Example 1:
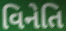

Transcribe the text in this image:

વિનેતિ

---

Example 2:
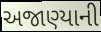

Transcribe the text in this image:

અજાણ્યાની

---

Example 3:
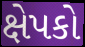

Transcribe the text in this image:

ક્ષેપકો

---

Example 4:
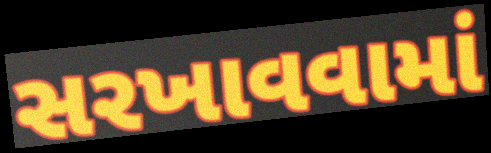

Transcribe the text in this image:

સરખાવવામાં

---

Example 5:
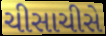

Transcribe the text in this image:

ચીસાચીસે